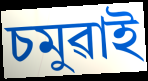
চমুৱাই